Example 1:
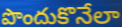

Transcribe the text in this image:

పొందుకొనేలా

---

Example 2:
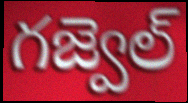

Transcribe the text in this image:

గజ్వెల్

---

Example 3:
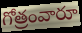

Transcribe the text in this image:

గోత్రంవారూ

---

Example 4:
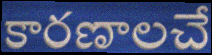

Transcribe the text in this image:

కారణాలచే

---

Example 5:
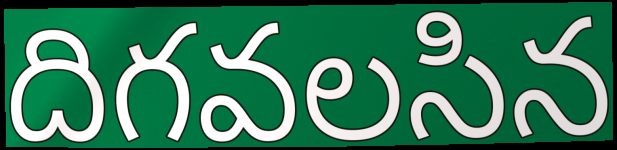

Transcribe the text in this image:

దిగవలసిన